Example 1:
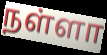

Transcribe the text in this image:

நள்ளா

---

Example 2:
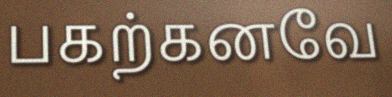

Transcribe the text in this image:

பகற்கனவே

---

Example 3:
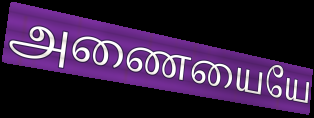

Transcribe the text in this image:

அணையையே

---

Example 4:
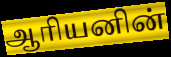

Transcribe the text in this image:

ஆரியனின்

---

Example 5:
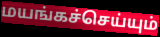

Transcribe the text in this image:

மயங்கச்செய்யும்